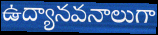
ఉద్యానవనాలుగా